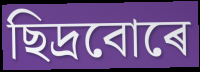
ছিদ্ৰবোৰে